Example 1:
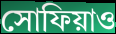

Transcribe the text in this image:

সোফিয়াও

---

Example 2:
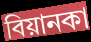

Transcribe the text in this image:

বিয়ানকা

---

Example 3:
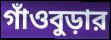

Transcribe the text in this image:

গাঁওবুড়ার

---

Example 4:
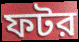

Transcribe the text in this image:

ফটর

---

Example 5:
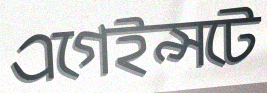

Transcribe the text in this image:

এগেইন্সটে